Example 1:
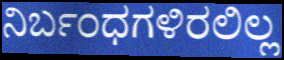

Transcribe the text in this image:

ನಿರ್ಬಂಧಗಳಿರಲಿಲ್ಲ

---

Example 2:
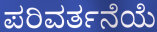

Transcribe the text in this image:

ಪರಿವರ್ತನೆಯೆ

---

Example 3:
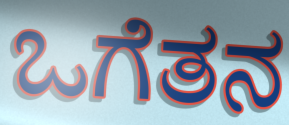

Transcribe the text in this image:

ಒಗೆತನ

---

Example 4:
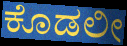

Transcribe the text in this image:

ಕೊಡಲೀ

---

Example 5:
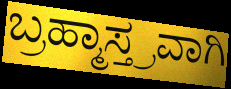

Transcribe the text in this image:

ಬ್ರಹ್ಮಾಸ್ತ್ರವಾಗಿ